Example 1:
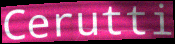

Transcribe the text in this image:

Cerutti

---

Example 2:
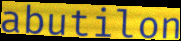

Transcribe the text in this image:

abutilon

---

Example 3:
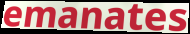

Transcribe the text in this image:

emanates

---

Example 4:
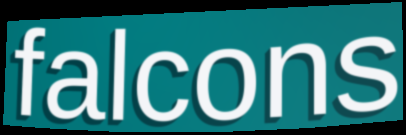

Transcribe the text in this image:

falcons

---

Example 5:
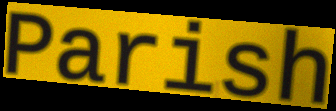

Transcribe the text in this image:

Parish